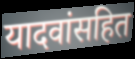
यादवांसहित